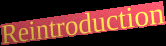
Reintroduction